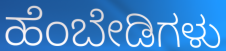
ಹೆಂಬೇಡಿಗಳು